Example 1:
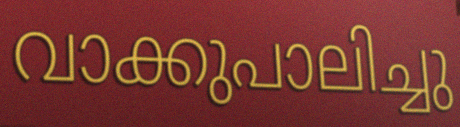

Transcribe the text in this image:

വാക്കുപാലിച്ചു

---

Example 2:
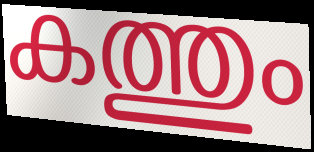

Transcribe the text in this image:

കത്തും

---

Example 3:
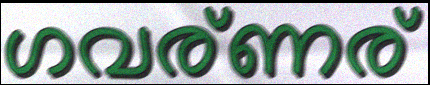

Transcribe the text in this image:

ഗവര്ണര്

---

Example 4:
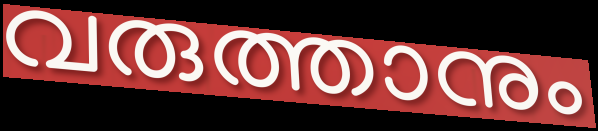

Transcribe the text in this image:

വരുത്താനും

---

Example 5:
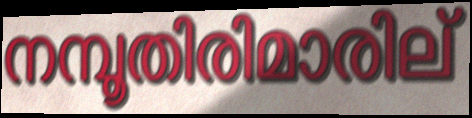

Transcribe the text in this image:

നമ്പൂതിരിമാരില്